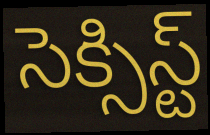
సెక్సిస్ట్